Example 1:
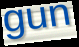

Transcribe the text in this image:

gun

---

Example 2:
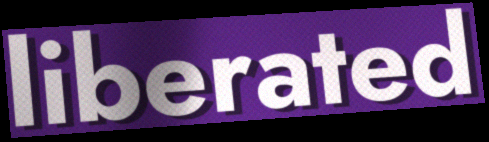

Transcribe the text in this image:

liberated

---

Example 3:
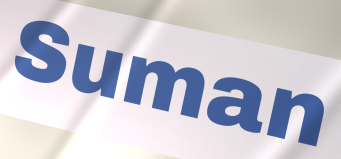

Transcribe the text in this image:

Suman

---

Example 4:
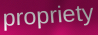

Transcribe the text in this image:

propriety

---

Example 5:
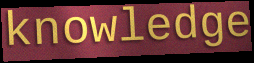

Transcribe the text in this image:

knowledge